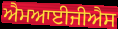
ਐਮਆਈਜੀਐਸ